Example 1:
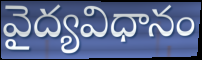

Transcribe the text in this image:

వైద్యవిధానం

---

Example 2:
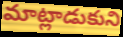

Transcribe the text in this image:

మాట్లాడుకుని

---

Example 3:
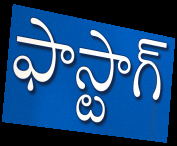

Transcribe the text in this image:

ఫాస్టాగ్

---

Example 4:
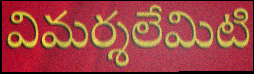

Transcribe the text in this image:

విమర్శలేమిటి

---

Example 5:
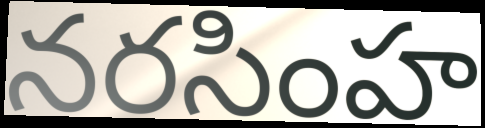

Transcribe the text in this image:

నరసింహ